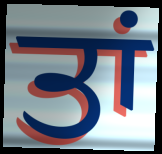
ਤਾਂ